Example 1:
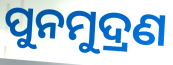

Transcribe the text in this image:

ପୁନମୁଦ୍ରଣ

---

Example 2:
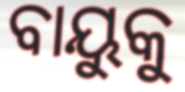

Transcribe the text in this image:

ବାୟୁକୁ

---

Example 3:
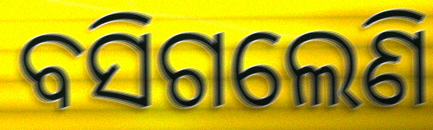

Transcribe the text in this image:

ବସିଗଲେଣି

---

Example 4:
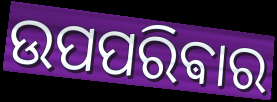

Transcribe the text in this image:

ଉପପରିଵାର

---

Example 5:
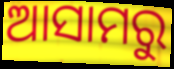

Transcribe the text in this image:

ଆସାମରୁ